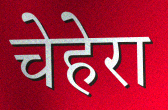
चेहेरा